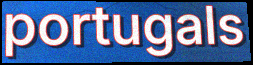
portugals